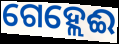
ଗେହ୍ଲେଈ